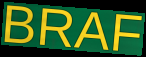
BRAF